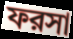
ফরসা